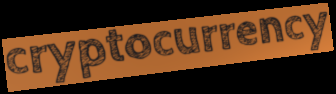
cryptocurrency